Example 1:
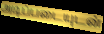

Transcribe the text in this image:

அடிப்படையுடன்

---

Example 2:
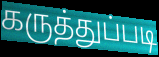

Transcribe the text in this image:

கருத்துப்படி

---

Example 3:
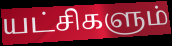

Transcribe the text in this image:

யட்சிகளும்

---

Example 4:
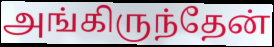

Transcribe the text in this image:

அங்கிருந்தேன்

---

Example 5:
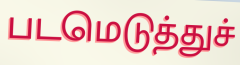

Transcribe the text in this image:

படமெடுத்துச்